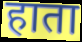
हाता